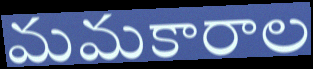
మమకారాల